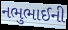
નભુભાઈની